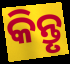
କିନ୍ତୃ